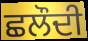
ਛਲੌਦੀ